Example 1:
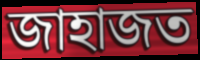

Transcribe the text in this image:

জাহাজত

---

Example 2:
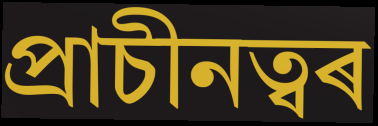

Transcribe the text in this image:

প্ৰাচীনত্বৰ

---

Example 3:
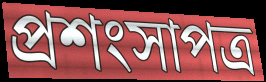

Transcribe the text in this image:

প্ৰশংসাপত্ৰ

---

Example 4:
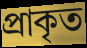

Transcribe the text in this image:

প্ৰাকৃত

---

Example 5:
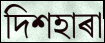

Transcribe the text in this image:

দিশহাৰা